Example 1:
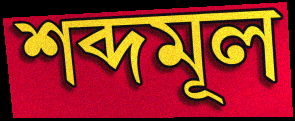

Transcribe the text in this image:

শব্দমূল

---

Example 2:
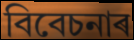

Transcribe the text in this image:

বিবেচনাৰ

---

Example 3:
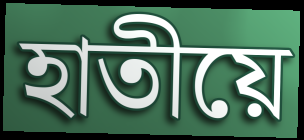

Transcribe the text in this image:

হাতীয়ে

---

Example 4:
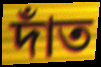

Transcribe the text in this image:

দাঁত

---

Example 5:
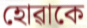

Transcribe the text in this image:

হোৱাকে